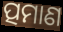
ତ୍ପମାଣ